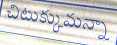
చిటుక్కుమన్నా